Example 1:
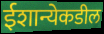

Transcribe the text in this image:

ईशान्येकडील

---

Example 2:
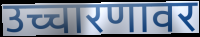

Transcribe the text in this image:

उच्चारणावर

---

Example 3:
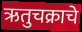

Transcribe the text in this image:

ऋतुचक्राचे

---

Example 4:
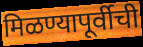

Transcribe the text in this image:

मिळण्यापूर्वीची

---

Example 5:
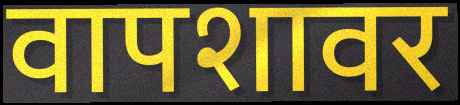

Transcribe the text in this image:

वापशावर